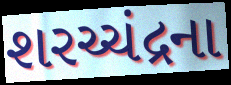
શરચ્ચંદ્રના